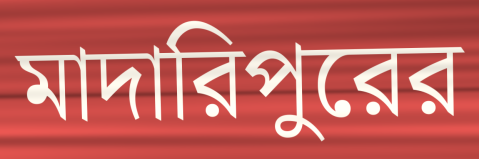
মাদারিপুরের